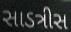
સાડત્રીસ